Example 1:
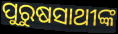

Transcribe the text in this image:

ପୁରୁଷସାଥୀଙ୍କ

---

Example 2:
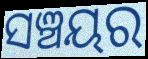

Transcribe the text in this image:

ସଞ୍ଚୟର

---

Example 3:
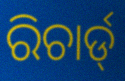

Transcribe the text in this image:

ରିଚାର୍ଡ୍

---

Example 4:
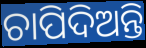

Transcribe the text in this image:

ଚାପିଦିଅନ୍ତି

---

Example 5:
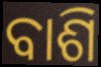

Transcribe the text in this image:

ବାଶି